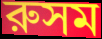
রুসম